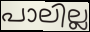
പാലില്ല